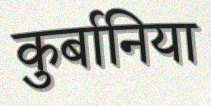
कुर्बानिया